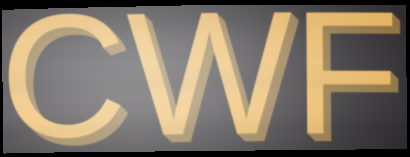
CWF